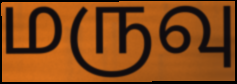
மருவு